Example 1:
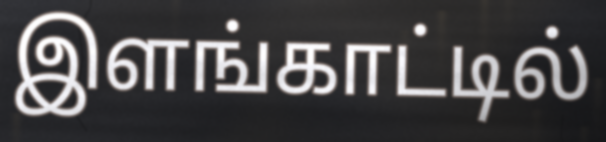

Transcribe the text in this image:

இளங்காட்டில்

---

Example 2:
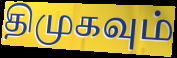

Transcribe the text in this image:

திமுகவும்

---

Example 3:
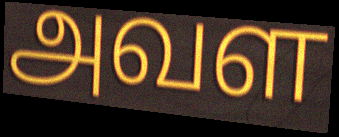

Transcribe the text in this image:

அவள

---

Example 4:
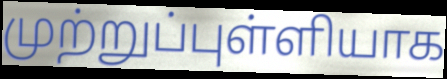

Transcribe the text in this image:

முற்றுப்புள்ளியாக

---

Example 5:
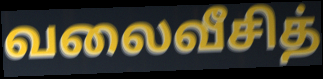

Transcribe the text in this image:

வலைவீசித்